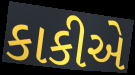
કાકીએ